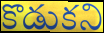
కొడుకని